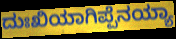
ದುಃಖಿಯಾಗಿಪ್ಪೆನಯ್ಯಾ